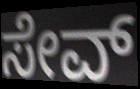
ಸೇವ್